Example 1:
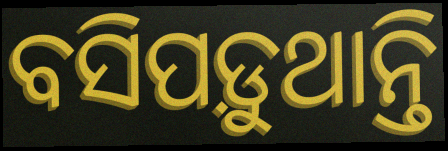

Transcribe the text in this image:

ବସିପଡ଼ୁଥାନ୍ତି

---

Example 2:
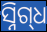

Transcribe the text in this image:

ସ୍ନିଗ୍‌ଧ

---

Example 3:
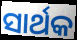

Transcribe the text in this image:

ସାର୍ଥକ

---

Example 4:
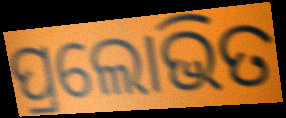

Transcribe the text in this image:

ପ୍ରଲୋଭିତ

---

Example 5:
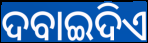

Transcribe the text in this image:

ଦବାଇଦିଏ